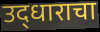
उद्धाराचा